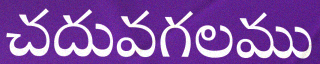
చదువగలము